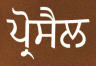
ਪ੍ਰੋਸੈਲ